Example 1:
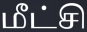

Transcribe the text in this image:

மீட்சி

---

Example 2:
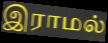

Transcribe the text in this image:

இராமல்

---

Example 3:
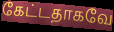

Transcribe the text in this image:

கேட்டதாகவே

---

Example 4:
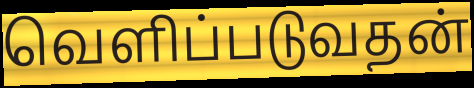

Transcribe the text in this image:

வெளிப்படுவதன்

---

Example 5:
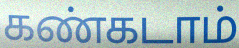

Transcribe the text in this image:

கண்கடாம்